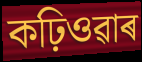
কঢ়িওৱাৰ